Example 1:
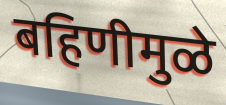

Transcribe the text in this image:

बहिणीमुळे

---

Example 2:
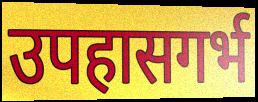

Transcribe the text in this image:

उपहासगर्भ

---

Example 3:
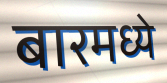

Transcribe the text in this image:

बारमध्ये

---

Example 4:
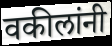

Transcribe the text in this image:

वकीलांनी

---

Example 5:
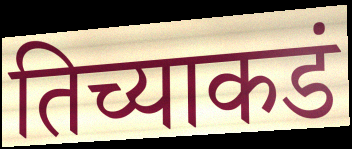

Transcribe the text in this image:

तिच्याकडं